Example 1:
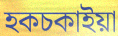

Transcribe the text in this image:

হকচকাইয়া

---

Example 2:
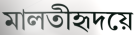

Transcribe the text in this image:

মালতীহৃদয়ে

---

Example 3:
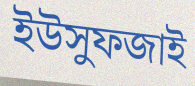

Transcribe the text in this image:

ইউসুফজাই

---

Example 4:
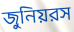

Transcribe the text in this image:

জুনিয়রস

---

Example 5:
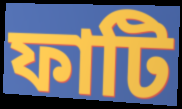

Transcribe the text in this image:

ফাটি